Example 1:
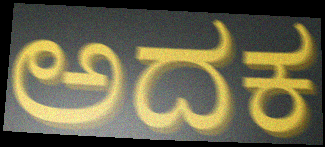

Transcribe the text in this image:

ಅದಕ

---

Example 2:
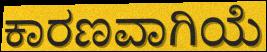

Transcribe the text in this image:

ಕಾರಣವಾಗಿಯೆ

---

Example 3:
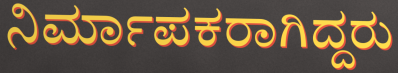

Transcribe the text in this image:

ನಿರ್ಮಾಪಕರಾಗಿದ್ದರು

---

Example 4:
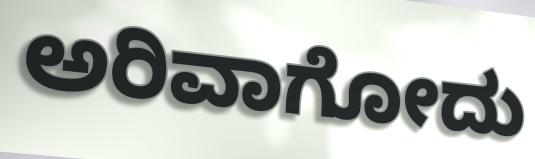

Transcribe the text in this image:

ಅರಿವಾಗೋದು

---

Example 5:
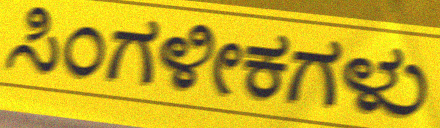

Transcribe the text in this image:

ಸಿಂಗಳೀಕಗಳು